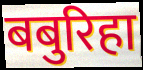
बबुरिहा